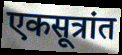
एकसूत्रांत